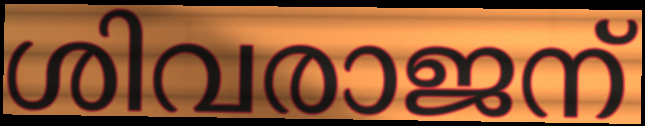
ശിവരാജന്